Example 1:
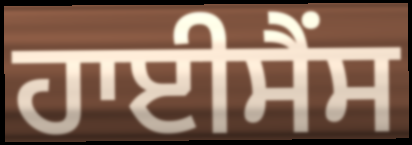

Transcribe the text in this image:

ਹਾਈਸੈਂਸ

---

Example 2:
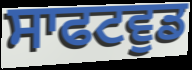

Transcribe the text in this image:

ਸਾਫਟਵੁਡ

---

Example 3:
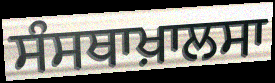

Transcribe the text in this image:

ਸੰਸਥਾਖ਼ਾਲਸਾ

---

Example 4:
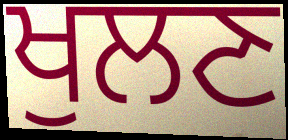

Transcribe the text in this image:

ਖੁਲਣ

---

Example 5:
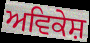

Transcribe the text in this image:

ਅਵਿਕੇਸ਼